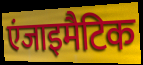
एंजाइमैटिक